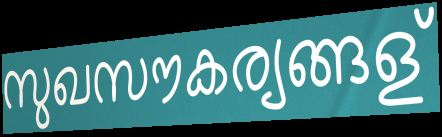
സുഖസൗകര്യങ്ങള്